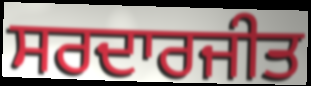
ਸਰਦਾਰਜੀਤ